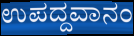
ಉಪದ್ದವಾನಂ